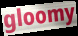
gloomy